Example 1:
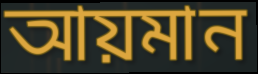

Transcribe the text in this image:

আয়মান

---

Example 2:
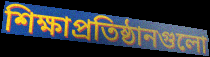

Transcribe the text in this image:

শিক্ষাপ্রতিষ্ঠানগুলো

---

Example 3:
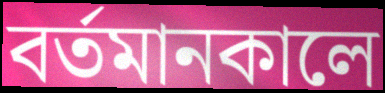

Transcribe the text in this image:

বর্তমানকালে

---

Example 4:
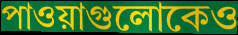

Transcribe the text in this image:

পাওয়াগুলোকেও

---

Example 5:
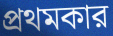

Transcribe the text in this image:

প্রথমকার